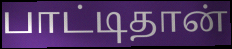
பாட்டிதான்